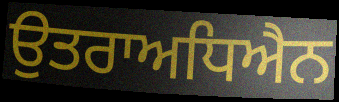
ਉਤਰਾਅਧਿਐਨ